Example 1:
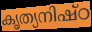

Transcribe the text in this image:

കൃത്യനിഷ്ഠ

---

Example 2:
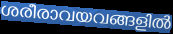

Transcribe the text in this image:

ശരീരാവയവങ്ങളിൽ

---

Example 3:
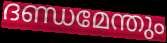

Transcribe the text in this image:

ദണ്ഡമേന്തും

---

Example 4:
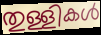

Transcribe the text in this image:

തുള്ളികൾ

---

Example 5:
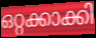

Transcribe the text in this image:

ഒറ്റക്കാക്കി